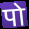
पो